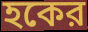
হকের